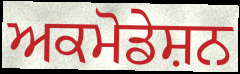
ਅਕਮੋਡੇਸ਼ਨ